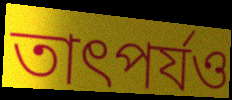
তাৎপৰ্যও